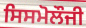
ਸਿਸਮੋਲੌਜੀ